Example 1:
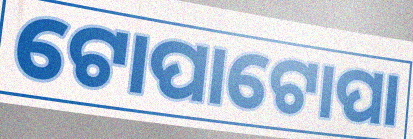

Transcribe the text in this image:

ଟୋପାଟୋପା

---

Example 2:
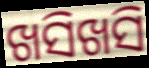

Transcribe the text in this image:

ଖସିଖସି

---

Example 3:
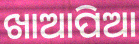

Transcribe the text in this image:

ଖାଆପିଆ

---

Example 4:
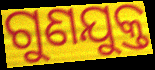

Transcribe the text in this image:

ଗୁଣଯୁକ୍ତ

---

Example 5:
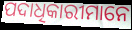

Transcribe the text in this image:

ପଦାଧିକାରୀମାନେ